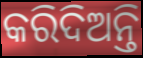
କରିଦିଅନ୍ତି